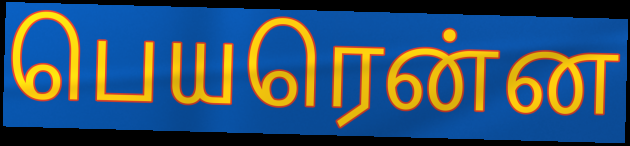
பெயரென்ன